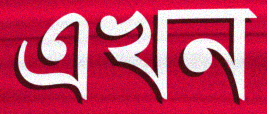
এখন